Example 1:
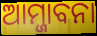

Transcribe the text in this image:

ଆମ୍ଜାବନା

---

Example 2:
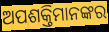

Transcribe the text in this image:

ଅପଶକ୍ତିମାନଙ୍କର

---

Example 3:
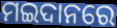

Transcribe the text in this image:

ମଇଦାନରେ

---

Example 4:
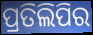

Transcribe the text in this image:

ପ୍ରତିଲିପିର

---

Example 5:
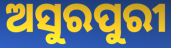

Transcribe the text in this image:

ଅସୁରପୁରୀ